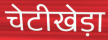
चेटीखेड़ा